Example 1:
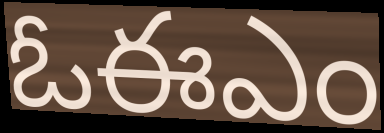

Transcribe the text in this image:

ఓఈఎం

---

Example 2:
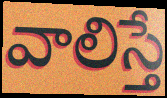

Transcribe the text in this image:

వాలిస్తే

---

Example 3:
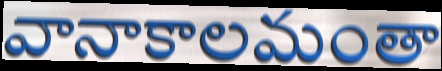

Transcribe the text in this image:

వానాకాలమంతా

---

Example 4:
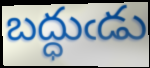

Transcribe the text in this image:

బద్ధుఁడు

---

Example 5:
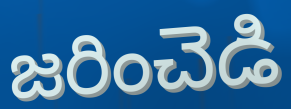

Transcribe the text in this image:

జరించెడి